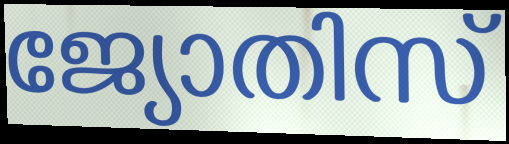
ജ്യോതിസ്